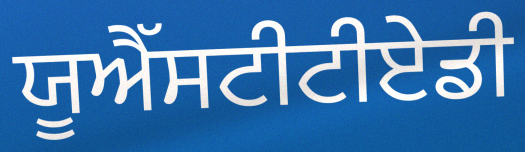
ਯੂਐੱਸਟੀਟੀਏਡੀ